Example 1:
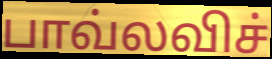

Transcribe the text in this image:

பாவ்லவிச்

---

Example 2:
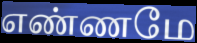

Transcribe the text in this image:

எண்ணமே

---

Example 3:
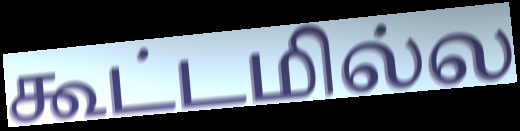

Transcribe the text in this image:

கூட்டமில்ல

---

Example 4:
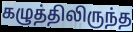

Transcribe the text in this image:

கழுத்திலிருந்த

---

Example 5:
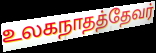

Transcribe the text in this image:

உலகநாதத்தேவர்